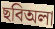
ছবিঅলা